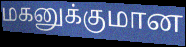
மகனுக்குமான